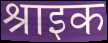
श्राइक